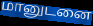
மானுடனை